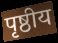
पृष्ठीय